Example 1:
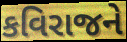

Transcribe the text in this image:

કવિરાજને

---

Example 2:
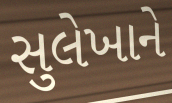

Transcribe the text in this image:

સુલેખાને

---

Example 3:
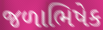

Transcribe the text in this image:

જળાભિષેક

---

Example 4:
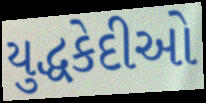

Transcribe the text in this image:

યુદ્ધકેદીઓ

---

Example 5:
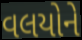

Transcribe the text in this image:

વલયોને